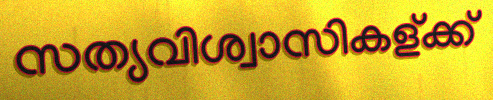
സത്യവിശ്വാസികള്ക്ക്